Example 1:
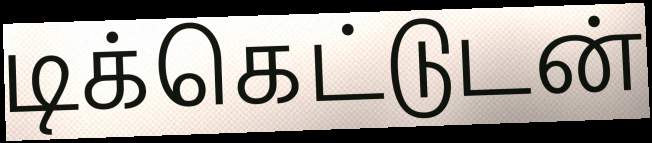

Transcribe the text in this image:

டிக்கெட்டுடன்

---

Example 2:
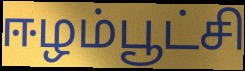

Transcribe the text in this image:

ஈழம்பூட்சி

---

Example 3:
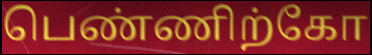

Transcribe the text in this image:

பெண்ணிற்கோ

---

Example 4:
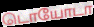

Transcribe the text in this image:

டொயோடா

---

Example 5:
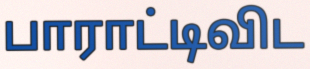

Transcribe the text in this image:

பாராட்டிவிட